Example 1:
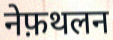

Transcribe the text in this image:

नेफ़थलन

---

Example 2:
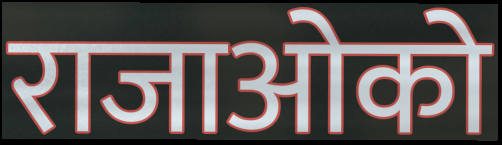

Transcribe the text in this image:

राजाओको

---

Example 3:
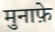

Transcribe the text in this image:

मुनाफ़े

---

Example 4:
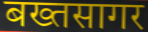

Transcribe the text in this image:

बख्तसागर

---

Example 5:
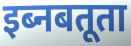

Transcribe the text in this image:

इब्नबतूता